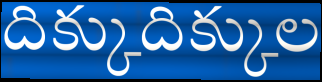
దిక్కుదిక్కుల